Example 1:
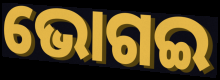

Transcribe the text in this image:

ଭୋଗଇ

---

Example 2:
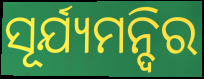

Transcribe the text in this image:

ସୂର୍ଯ୍ୟମନ୍ଦିର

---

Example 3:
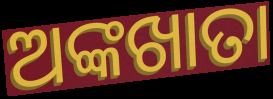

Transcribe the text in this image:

ଅଙ୍କଖାତା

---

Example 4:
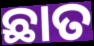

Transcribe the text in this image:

ଛାତ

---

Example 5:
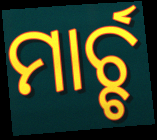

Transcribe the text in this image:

ମାର୍ଚ୍ଚ